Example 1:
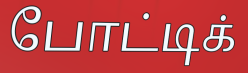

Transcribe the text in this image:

போட்டிக்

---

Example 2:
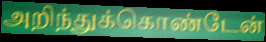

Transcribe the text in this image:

அறிந்துக்கொண்டேன்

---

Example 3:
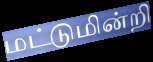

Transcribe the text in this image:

மட்டுமின்றி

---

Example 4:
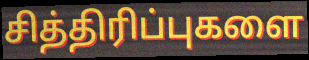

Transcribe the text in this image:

சித்திரிப்புகளை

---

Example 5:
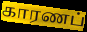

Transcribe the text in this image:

காரணப்